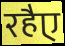
रहैए